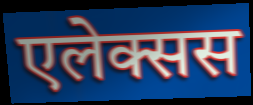
एलेक्सस